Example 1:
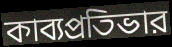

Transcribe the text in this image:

কাব্যপ্রতিভার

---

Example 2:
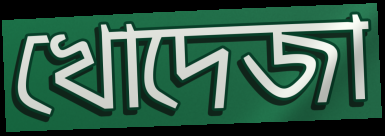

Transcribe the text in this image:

খোদেজা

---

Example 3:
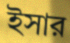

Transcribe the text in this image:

ইসার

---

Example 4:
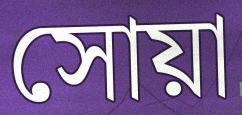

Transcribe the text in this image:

সোয়া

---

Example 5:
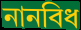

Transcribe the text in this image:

নানবিধ